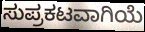
ಸುಪ್ರಕಟವಾಗಿಯೆ